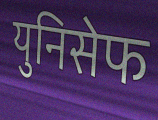
युनिसेफ